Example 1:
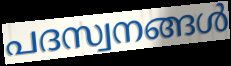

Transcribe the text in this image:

പദസ്വനങ്ങൾ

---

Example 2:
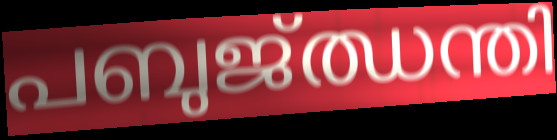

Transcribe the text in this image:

പബുജ്ഝന്തി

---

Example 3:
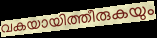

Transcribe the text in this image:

വകയായിത്തീരുകയും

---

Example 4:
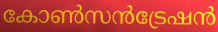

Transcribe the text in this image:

കോൺസൻട്രേഷൻ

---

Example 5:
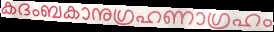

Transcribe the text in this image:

കദംബകാനുഗ്രഹണാഗ്രഹം